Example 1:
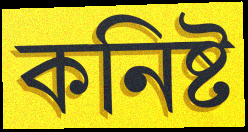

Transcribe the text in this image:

কনিষ্ট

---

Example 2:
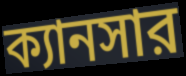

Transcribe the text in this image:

ক্যানসার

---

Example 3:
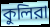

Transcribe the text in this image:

কুলিরা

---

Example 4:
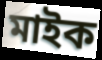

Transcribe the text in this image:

মাইক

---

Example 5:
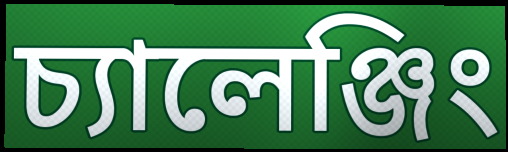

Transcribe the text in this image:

চ্যালেঞ্জিং